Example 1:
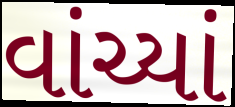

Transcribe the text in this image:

વાંચ્યાં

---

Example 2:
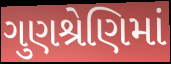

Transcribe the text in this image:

ગુણશ્રેણિમાં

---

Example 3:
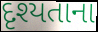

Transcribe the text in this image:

દૃશ્યતાના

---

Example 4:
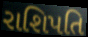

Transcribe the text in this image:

રાશિપતિ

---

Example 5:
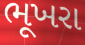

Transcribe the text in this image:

ભૂખરા